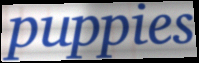
puppies